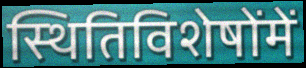
स्थितिविशेषोंमें